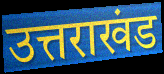
उत्तराखंड